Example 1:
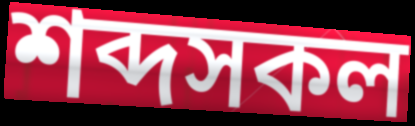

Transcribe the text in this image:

শব্দসকল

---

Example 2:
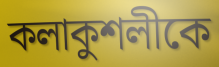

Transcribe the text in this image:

কলাকুশলীকে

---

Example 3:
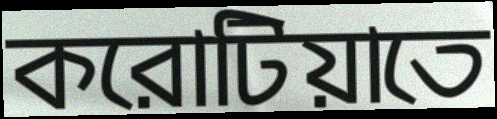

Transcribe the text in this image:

করোটিয়াতে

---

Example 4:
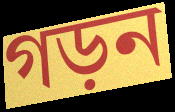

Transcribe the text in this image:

গড়ন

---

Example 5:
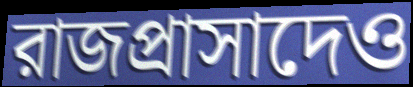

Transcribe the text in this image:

রাজপ্রাসাদেও